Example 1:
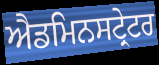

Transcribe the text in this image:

ਐਡਮਿਨਸਟ੍ਰੇਟਰ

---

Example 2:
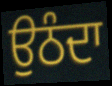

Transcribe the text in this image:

ਉਠੰਦਾ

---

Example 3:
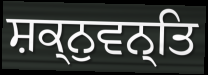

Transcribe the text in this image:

ਸ਼ਕ੍ਨੁਵਨ੍ਤਿ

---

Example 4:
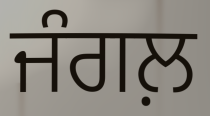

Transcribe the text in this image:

ਜੰਗਲ਼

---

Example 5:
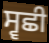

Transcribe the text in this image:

ਸ੍ਵਛੀ